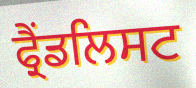
ਫ੍ਰੈਂਡਲਿਸਟ